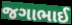
જગાભાઈ